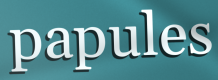
papules